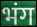
भंग